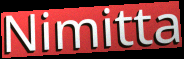
Nimitta